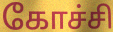
கோச்சி